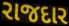
રાજદાર